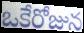
ఒకేరోజున